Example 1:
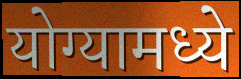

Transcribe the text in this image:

योग्यामध्ये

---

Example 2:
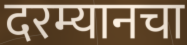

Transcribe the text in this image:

दरम्यानचा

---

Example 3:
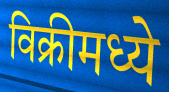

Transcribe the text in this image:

विक्रीमध्ये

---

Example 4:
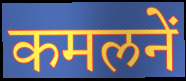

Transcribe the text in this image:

कमलनें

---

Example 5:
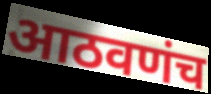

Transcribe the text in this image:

आठवणंच